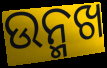
ଉନ୍ମଖ